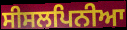
ਸੀਸਲਪਿਨੀਆ